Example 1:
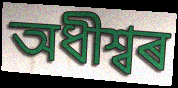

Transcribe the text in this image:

অধীশ্বৰ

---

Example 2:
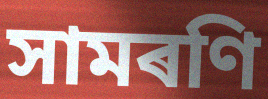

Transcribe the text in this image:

সামৰণি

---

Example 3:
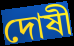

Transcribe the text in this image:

দোষী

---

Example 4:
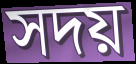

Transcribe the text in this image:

সদয়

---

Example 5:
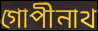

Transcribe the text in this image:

গোপীনাথ